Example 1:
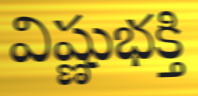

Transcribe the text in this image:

విష్ణుభక్తి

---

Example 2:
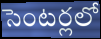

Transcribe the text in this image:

సెంటర్లలో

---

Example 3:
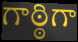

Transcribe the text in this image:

గాఠ్ఠిగా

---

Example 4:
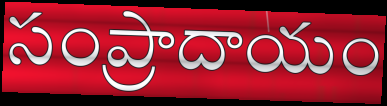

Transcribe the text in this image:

సంప్రాదాయం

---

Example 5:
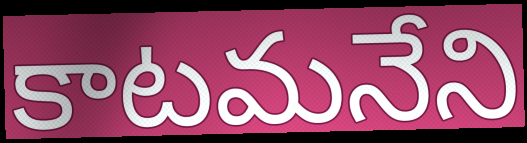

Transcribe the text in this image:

కాటమనేని